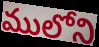
ములోని